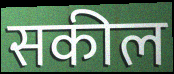
सकील